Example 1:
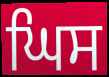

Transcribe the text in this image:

ਘਿਸ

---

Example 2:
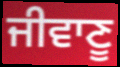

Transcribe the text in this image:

ਜੀਵਾਣੂ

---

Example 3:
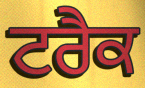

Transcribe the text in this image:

ਟਰੈਕ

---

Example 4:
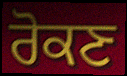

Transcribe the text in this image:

ਰੋਕਣ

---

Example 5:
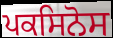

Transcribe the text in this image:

ਪਕਸਿਨੋਸ